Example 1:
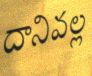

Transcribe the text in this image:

దానివల్ల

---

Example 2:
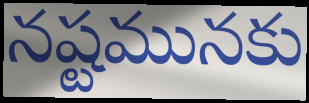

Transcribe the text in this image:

నష్టమునకు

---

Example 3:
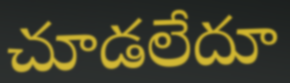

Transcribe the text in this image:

చూడలేదూ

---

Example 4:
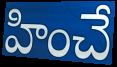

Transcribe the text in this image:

హించే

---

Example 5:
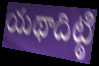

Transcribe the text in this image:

యథాదిట్ఠి